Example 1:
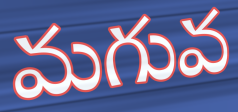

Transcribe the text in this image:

మగువ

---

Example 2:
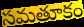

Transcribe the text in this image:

సమతూకం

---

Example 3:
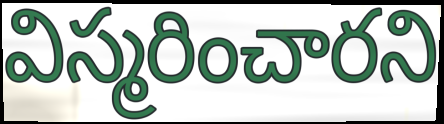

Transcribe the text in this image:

విస్మరించారని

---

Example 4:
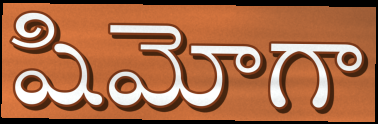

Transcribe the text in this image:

షిమోగా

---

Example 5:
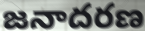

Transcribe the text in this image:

జనాదరణ